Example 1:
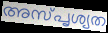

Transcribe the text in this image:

അസ്പൃശ്യത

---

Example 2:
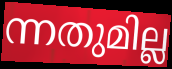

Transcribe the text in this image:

ന്നതുമില്ല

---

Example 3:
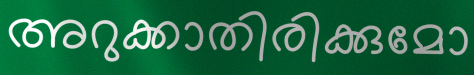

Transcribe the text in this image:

അറുക്കാതിരിക്കുമോ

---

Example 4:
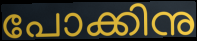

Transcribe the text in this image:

പോക്കിനു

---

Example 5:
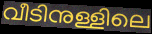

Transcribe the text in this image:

വീടിനുള്ളിലെ